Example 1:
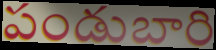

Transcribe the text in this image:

పండుబారి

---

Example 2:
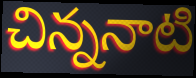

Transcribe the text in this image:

చిన్ననాటి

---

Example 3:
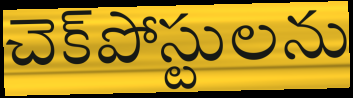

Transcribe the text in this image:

చెక్‌పోస్టులను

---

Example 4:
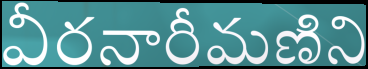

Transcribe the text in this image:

వీరనారీమణిని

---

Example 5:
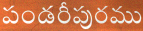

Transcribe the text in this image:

పండరీపురము